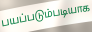
பயப்படும்படியாக